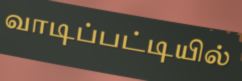
வாடிப்பட்டியில்